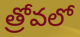
త్రోవలో